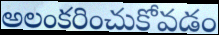
అలంకరించుకోవడం